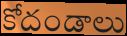
కోదండాలు